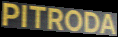
PITRODA